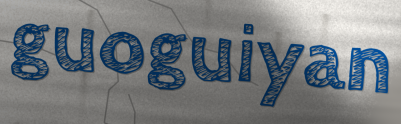
guoguiyan